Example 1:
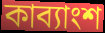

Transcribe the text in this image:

কাব্যাংশ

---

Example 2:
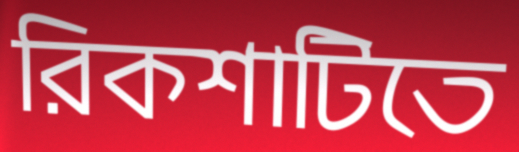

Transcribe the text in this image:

রিকশাটিতে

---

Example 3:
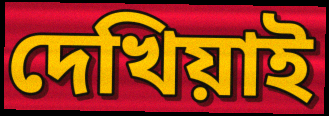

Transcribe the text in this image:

দেখিয়াই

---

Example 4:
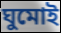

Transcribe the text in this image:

ঘুমোই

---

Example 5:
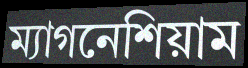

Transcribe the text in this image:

ম্যাগনেশিয়াম